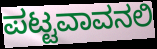
ಪಟ್ಟವಾವನಲಿ